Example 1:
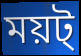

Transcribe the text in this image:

ময়ট্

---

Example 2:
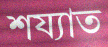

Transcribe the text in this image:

শয্যাত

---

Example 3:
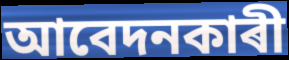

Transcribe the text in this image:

আবেদনকাৰী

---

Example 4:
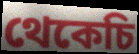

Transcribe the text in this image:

থেকেচি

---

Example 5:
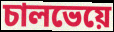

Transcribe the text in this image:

চালভেয়ে